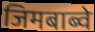
जिमबाब्वे